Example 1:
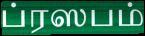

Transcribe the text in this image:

ப்ரஸபம்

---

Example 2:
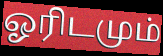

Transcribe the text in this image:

ஓரிடமும்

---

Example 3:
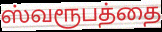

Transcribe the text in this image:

ஸ்வரூபத்தை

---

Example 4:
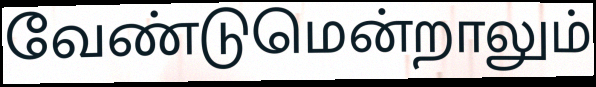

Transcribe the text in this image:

வேண்டுமென்றாலும்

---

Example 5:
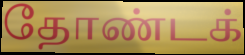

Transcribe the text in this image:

தோண்டக்